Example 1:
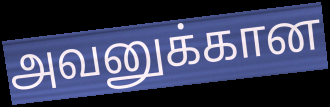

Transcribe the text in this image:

அவனுக்கான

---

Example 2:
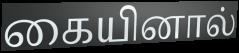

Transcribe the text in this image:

கையினால்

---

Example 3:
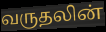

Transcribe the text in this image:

வருதலின்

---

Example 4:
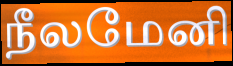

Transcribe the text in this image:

நீலமேனி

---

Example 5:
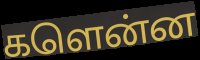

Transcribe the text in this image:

களென்ன